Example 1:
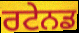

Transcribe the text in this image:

ਰਟੇਨਡ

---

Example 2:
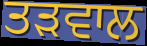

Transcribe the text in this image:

ਤੜਵਾਲ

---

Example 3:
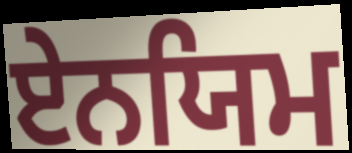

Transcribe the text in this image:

ਏਨਯਿਮ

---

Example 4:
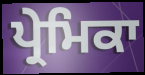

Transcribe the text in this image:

ਪ੍ਰੇਮਿਕਾ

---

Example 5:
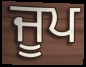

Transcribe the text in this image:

ਜੂਪ